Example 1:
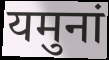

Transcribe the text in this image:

यमुनां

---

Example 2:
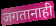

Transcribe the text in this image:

जगतानाही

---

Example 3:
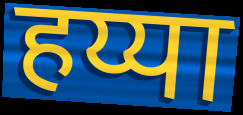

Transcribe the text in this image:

हय्या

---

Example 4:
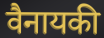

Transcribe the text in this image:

वैनायकी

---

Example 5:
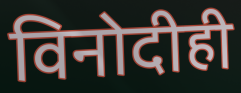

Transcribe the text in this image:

विनोदीही